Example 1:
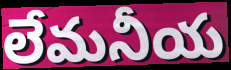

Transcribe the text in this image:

లేమనీయ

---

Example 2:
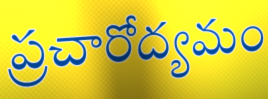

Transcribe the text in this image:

ప్రచారోద్యమం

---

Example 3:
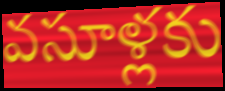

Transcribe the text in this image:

వసూళ్లకు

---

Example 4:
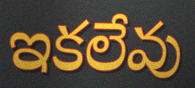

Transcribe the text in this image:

ఇకలేవు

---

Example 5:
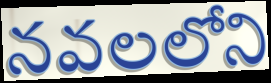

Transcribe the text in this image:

నవలలోని